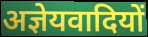
अज्ञेयवादियों